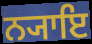
ਨ੍ਯਾਇ